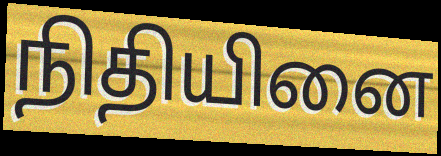
நிதியினை